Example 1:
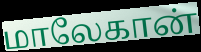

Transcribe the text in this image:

மாலேகான்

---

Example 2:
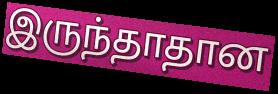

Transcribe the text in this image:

இருந்தாதான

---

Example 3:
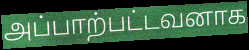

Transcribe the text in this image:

அப்பாற்பட்டவனாக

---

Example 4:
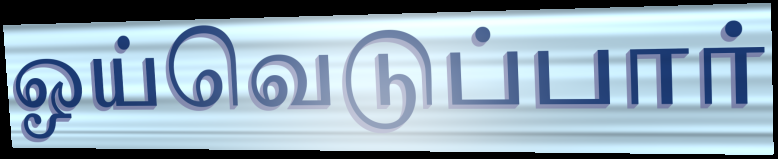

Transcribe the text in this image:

ஓய்வெடுப்பார்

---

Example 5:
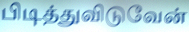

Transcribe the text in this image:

பிடித்துவிடுவேன்